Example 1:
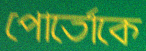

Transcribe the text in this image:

পোর্তোকে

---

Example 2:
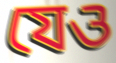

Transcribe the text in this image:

যেও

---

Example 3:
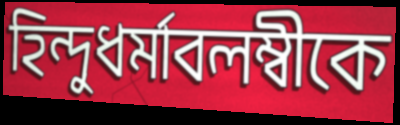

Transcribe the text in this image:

হিন্দুধর্মাবলম্বীকে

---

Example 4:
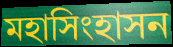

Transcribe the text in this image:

মহাসিংহাসন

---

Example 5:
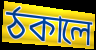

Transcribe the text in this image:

ঠকালে